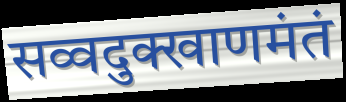
सव्वदुक्खाणमंतं